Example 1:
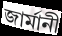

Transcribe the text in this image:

জাৰ্মানী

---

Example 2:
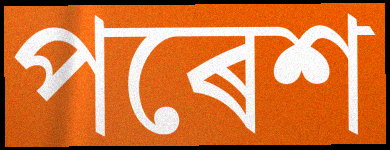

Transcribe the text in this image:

পৰেশ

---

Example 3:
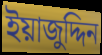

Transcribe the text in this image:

ইয়াজুদ্দিন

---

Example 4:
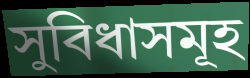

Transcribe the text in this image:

সুবিধাসমূহ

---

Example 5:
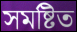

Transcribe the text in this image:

সমষ্টিত